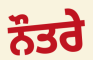
ਨੌਤਰੇ